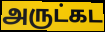
அருட்கட